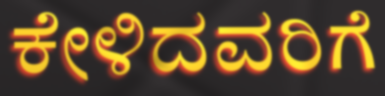
ಕೇಳಿದವರಿಗೆ